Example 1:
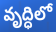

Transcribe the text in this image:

వృద్ధిలో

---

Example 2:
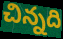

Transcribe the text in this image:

చిన్నది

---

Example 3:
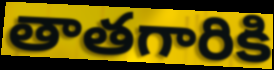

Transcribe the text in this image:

తాతగారికి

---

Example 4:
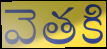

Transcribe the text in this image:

వెతకి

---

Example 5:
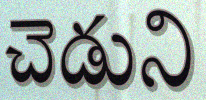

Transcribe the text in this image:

చెడుని